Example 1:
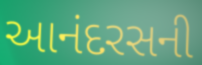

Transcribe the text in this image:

આનંદરસની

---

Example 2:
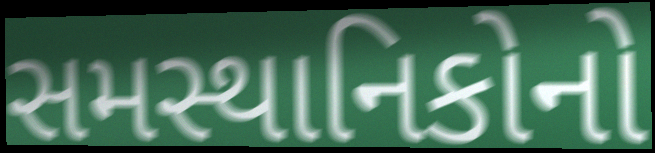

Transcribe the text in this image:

સમસ્થાનિકોનો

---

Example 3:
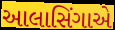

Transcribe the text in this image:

આલાસિંગાએ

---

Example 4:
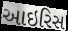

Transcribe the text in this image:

આઇરિસ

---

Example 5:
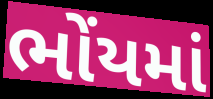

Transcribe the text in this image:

ભોંયમાં